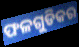
ଫଳଗୁଡିକର